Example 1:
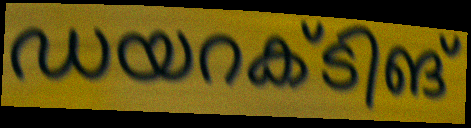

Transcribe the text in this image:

ഡയറക്ടിങ്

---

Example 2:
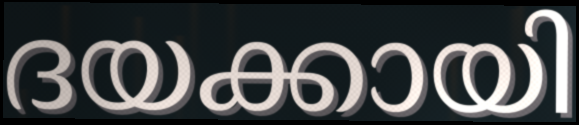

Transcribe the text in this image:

ദയക്കായി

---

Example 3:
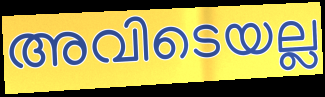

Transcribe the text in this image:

അവിടെയല്ല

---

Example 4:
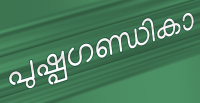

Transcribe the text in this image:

പുഷ്പഗണ്ഡികാ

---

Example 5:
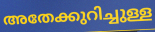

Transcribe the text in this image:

അതേക്കുറിച്ചുള്ള